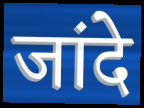
जांदे